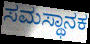
ಸಮಸ್ಥಾನಕ